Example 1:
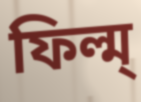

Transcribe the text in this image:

ফিল্ম্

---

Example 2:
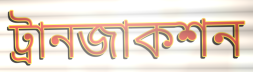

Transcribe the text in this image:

ট্রানজাকশন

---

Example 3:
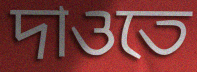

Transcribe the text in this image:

দাওতে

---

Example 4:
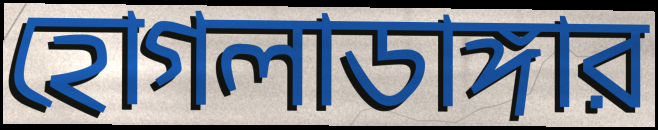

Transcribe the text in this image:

হোগলাডাঙ্গার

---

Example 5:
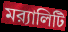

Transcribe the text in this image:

মর‍্যালিটি